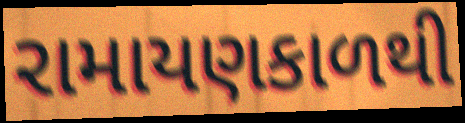
રામાયણકાળથી